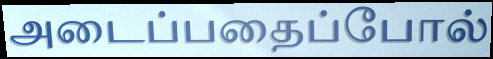
அடைப்பதைப்போல்